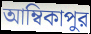
আম্বিকাপুর